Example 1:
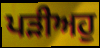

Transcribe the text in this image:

ਪੜੀਅਹੁ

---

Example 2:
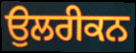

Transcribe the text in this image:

ਉਲਰੀਕਨ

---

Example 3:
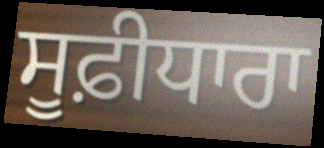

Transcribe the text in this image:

ਸੂਫ਼ੀਧਾਰਾ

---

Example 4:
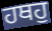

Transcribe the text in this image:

ਹਥਹੁ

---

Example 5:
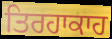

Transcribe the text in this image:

ਤਿਰਹਾਕਾਹ